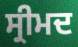
ਸ੍ਰੀਮਦ